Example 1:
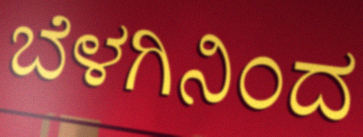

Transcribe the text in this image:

ಬೆಳಗಿನಿಂದ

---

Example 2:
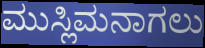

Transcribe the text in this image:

ಮುಸ್ಲಿಮನಾಗಲು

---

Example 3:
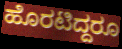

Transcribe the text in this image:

ಹೊರಟಿದ್ದರೂ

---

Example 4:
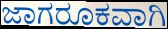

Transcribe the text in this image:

ಜಾಗರೂಕವಾಗಿ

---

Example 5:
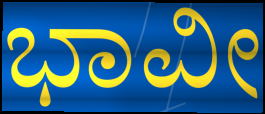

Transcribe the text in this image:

ಭಾವೀ